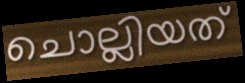
ചൊല്ലിയത്